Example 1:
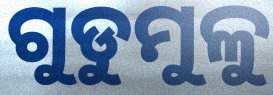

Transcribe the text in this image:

ଗୁଡୁମୁଳୁ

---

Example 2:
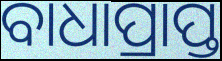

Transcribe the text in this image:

ବାଧାପ୍ରାପ୍ତ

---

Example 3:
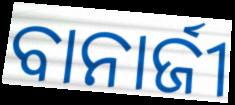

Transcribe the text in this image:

ବାନାର୍ଜୀ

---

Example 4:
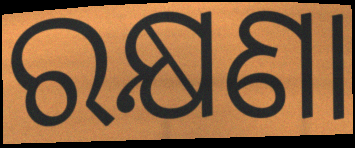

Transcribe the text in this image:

ରକ୍ଷଣା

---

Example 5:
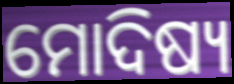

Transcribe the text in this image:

ମୋଦିଷ୍ୟ